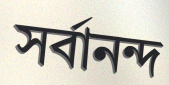
সৰ্বানন্দ